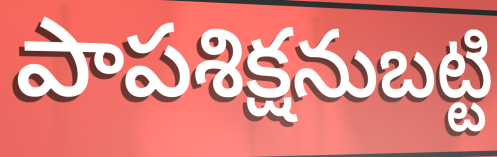
పాపశిక్షనుబట్టి